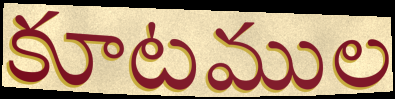
కూటముల